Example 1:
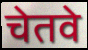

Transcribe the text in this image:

चेतवे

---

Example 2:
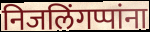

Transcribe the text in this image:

निजलिंगप्पांना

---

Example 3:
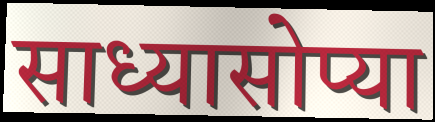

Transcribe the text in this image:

साध्यासोप्या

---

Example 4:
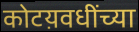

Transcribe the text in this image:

कोटय़वधींच्या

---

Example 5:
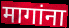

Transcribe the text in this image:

मागांना